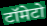
टॉमेटो